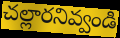
చల్లారనివ్వండి